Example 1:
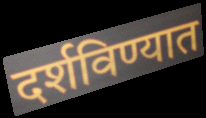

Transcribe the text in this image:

दर्शविण्यात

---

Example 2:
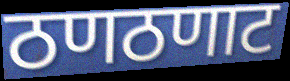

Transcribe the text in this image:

ठणठणाट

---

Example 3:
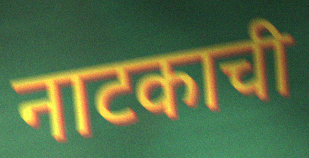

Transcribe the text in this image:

नाटकाची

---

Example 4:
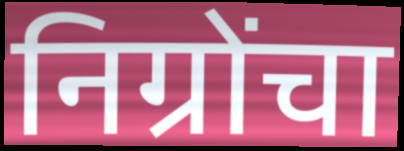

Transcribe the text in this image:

निग्रोंचा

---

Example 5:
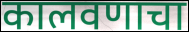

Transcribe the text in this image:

कालवणाचा